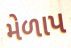
મેળાપ